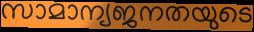
സാമാന്യജനതയുടെ